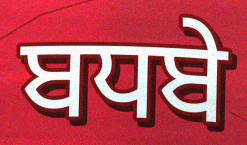
ਬਧਬੇ